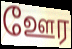
ஊேர